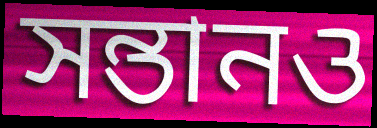
সন্তানও